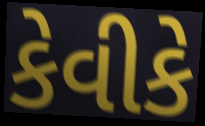
કેવીકે